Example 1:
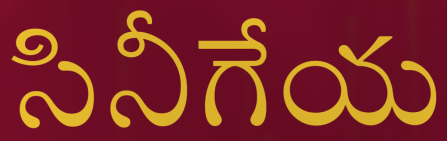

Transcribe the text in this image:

సినీగేయ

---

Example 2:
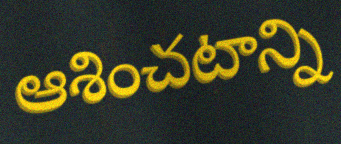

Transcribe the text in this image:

ఆశించటాన్ని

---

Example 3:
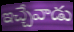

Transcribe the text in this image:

ఇచ్చేవాడు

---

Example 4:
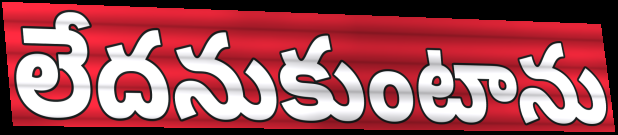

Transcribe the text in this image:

లేదనుకుంటాను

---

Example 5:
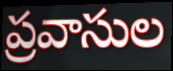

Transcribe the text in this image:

ప్రవాసుల